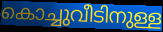
കൊച്ചുവീടിനുള്ള